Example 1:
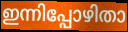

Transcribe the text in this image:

ഇന്നിപ്പോഴിതാ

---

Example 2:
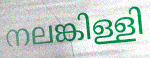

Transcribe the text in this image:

നലങ്കിള്ളി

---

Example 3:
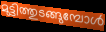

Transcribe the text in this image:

മുട്ടിത്തുടങ്ങുമ്പോൾ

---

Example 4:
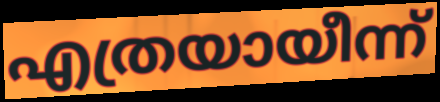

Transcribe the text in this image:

എത്രയായീന്ന്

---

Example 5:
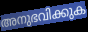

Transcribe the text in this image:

അനുഭവിക്കുക